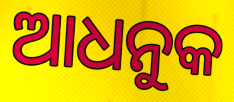
ଆଧନୁକ